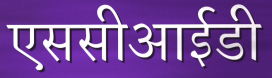
एससीआईडी